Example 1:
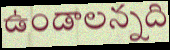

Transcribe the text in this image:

ఉండాలన్నది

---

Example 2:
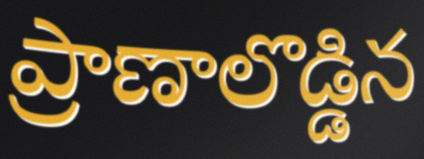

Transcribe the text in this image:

ప్రాణాలొడ్డిన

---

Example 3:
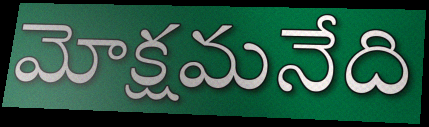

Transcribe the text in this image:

మోక్షమనేది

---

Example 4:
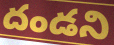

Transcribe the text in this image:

దండని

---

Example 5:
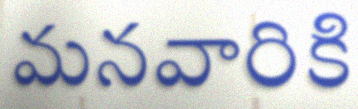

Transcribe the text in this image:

మనవారికి